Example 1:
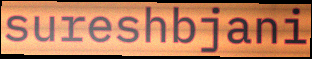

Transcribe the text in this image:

sureshbjani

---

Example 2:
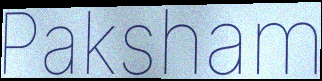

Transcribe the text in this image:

Paksham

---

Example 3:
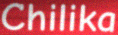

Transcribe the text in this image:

Chilika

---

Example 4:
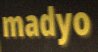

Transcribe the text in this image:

madyo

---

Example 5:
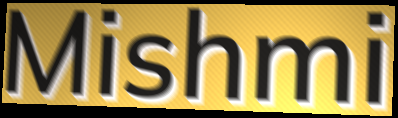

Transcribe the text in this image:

Mishmi